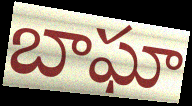
బాఘా